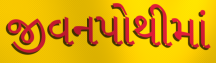
જીવનપોથીમાં